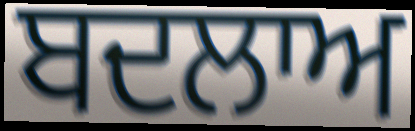
ਬਦਲਾਅ